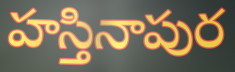
హస్తినాపుర